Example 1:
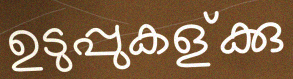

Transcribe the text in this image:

ഉടുപ്പുകള്ക്കു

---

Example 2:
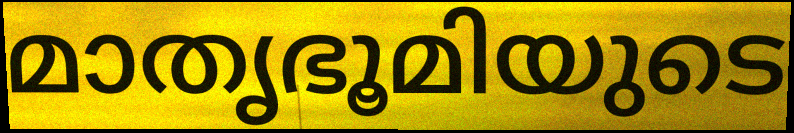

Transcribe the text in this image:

മാതൃഭൂമിയുടെ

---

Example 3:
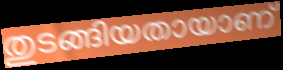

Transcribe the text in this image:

തുടങ്ങിയതായാണ്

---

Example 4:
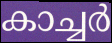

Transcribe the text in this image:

കാച്ചർ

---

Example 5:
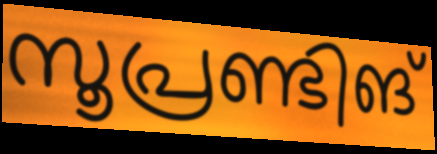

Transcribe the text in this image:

സൂപ്രണ്ടിങ്